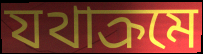
যথাক্রমে